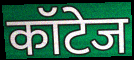
कॉटेज